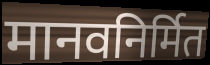
मानवनिर्मित